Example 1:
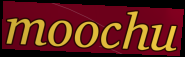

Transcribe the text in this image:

moochu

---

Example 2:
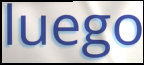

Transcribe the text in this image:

luego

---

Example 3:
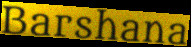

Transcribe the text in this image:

Barshana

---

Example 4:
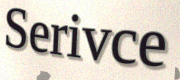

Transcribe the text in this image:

Serivce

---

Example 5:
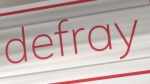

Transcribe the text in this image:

defray